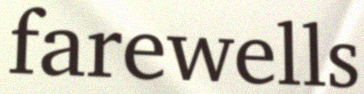
farewells